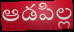
ఆడపిల్ల